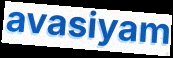
avasiyam